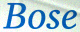
Bose